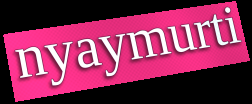
nyaymurti